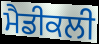
ਮੈਡੀਕਲੀ